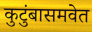
कुटुंबासमवेत